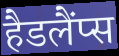
हैडलैंप्स